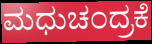
ಮಧುಚಂದ್ರಕೆ